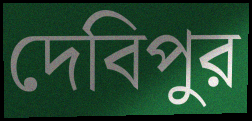
দেবিপুর